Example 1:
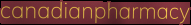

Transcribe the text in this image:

canadianpharmacy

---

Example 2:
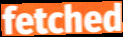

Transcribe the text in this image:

fetched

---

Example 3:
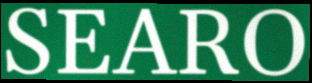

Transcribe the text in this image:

SEARO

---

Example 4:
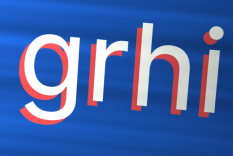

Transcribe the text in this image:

grhi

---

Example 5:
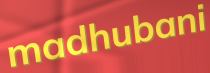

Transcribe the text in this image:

madhubani